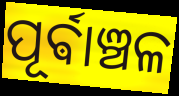
ପୂର୍ଵାଞ୍ଚଳ